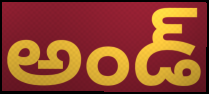
అండ్